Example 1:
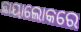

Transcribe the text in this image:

ଛାୟାଲୋକରେ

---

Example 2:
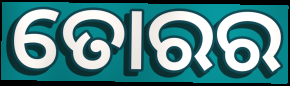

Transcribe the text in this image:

ତୋରର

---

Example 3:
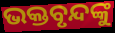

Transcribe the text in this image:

ଭକ୍ତବୃନ୍ଦଙ୍କୁ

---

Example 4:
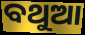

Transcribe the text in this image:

ବଥୁଆ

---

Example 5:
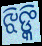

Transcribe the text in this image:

ଝିଙ୍କି